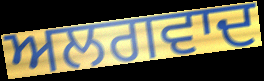
ਅਲਗਵਾਦ